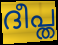
ദീപ്ത